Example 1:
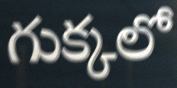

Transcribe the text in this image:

గుక్కలో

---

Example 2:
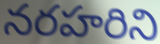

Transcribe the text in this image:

నరహరిని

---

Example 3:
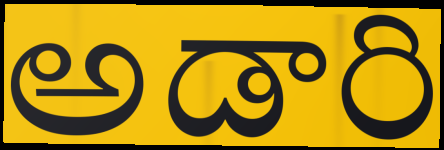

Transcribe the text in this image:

అడారి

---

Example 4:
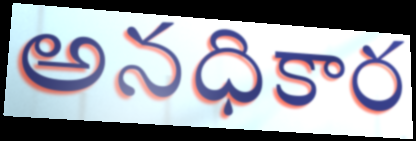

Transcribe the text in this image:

అనధికార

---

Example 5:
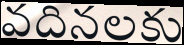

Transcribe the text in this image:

వదినలకు